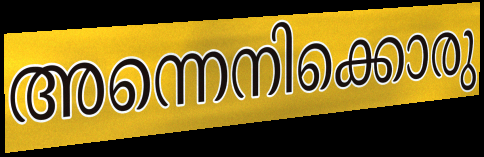
അന്നെനിക്കൊരു